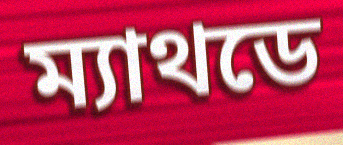
ম্যাথডে